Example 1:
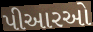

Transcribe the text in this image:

પીઆરઓ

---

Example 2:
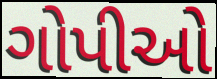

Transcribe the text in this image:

ગોપીઓ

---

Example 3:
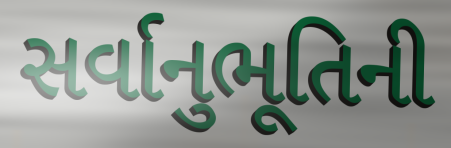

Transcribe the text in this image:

સર્વાનુભૂતિની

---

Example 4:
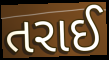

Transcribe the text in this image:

તરાઈ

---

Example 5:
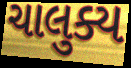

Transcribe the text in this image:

ચાલુક્ય